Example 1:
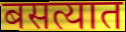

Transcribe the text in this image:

बसत्यात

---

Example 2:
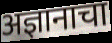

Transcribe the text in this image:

अज्ञानाचा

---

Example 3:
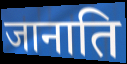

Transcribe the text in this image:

जानाति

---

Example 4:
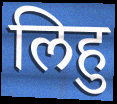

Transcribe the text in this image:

लिहु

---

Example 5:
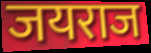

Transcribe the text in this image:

जयराज